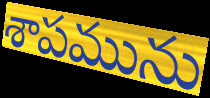
శాపమును